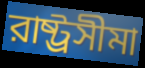
রাষ্ট্রসীমা